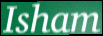
Isham